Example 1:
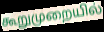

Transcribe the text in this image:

கூறுமுறையில்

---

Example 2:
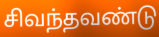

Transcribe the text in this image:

சிவந்தவண்டு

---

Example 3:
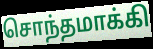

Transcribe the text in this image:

சொந்தமாக்கி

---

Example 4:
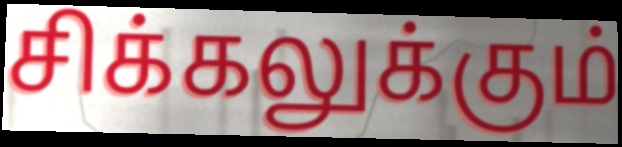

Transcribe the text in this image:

சிக்கலுக்கும்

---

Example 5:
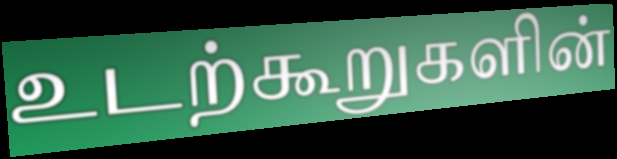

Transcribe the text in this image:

உடற்கூறுகளின்